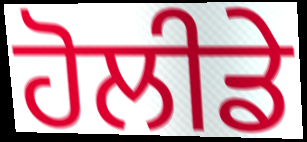
ਹੋਲੀਡੇ